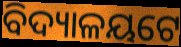
ବିଦ୍ୟାଳୟଟେ